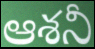
ఆశనీ